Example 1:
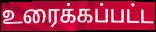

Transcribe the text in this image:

உரைக்கப்பட்ட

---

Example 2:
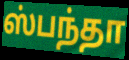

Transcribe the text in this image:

ஸ்பந்தா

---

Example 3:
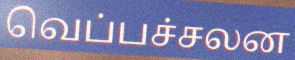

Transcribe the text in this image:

வெப்பச்சலன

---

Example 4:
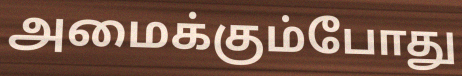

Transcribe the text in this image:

அமைக்கும்போது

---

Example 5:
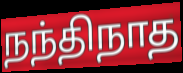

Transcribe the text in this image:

நந்திநாத